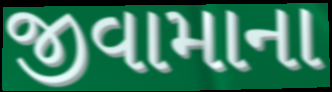
જીવામાના